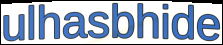
ulhasbhide